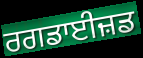
ਰਗਡਾਈਜ਼ਡ